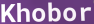
Khobor